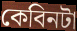
কেবিনটা